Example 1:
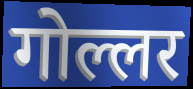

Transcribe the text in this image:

गोल्लर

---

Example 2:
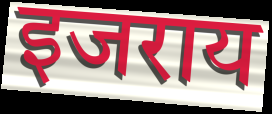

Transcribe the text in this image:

इजराय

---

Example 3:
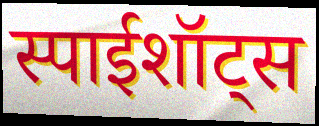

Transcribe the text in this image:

स्पाईशॉट्स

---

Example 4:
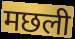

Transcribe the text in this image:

मछली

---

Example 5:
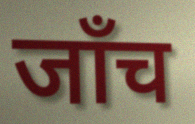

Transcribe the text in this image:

जाँच